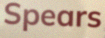
Spears